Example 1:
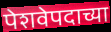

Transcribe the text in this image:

पेशवेपदाच्या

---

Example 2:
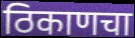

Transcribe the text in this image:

ठिकाणचा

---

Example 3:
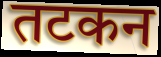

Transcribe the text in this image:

तटकन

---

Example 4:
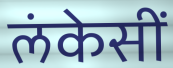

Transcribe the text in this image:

लंकेसीं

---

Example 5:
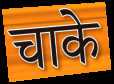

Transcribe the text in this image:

चाके